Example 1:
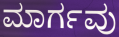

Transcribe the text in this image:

ಮಾರ್ಗವು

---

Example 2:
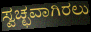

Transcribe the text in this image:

ಸ್ವಚ್ಛವಾಗಿರಲು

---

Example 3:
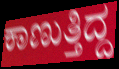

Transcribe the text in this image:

ಕಾಣುತ್ತಿದ್ದ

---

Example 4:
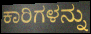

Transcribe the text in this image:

ಕಾರಿಗಳನ್ನು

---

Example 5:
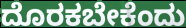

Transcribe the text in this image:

ದೊರಕಬೇಕೆಂದು